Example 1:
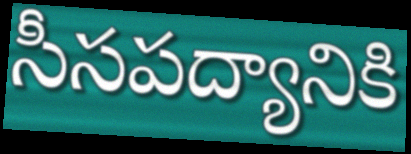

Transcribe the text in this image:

సీసపద్యానికి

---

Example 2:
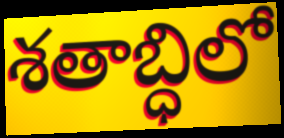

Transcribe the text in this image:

శతాబ్ధిలో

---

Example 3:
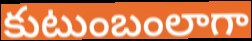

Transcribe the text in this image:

కుటుంబంలాగా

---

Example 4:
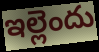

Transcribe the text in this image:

ఇల్లెందు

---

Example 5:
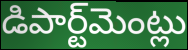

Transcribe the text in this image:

డిపార్ట్‌మెంట్లు